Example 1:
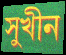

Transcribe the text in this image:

সুখীন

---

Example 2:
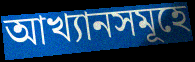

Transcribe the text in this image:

আখ্যানসমূহে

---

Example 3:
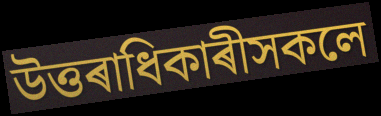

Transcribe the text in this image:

উত্তৰাধিকাৰীসকলে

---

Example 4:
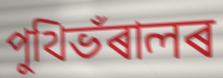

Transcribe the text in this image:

পুথিভঁৰালৰ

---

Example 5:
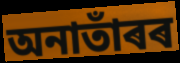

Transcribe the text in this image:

অনাতাঁৰৰ